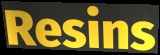
Resins